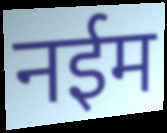
नईम